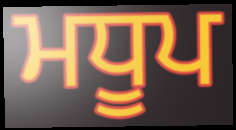
ਮਧੂਪ